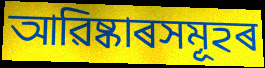
আৱিষ্কাৰসমূহৰ